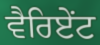
ਵੈਰਿਏਂਟ